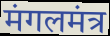
मंगलमंत्र